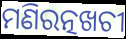
ମଣିରତ୍ନଖଚୀ